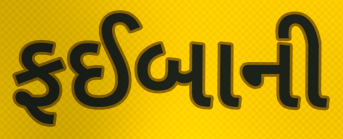
ફઈબાની